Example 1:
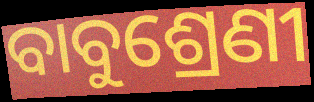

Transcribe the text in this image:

ବାବୁଶ୍ରେଣୀ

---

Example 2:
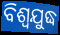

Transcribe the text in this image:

ବିଶ୍ୱଯୁଦ୍ଧ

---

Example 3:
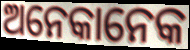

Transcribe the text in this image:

ଅନେକାନେକ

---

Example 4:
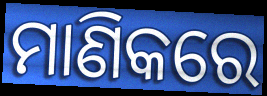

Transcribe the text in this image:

ମାଣିକରେ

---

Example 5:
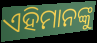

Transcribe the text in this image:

ଏହିମାନଙ୍କୁ